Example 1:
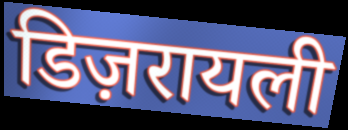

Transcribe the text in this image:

डिज़रायली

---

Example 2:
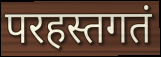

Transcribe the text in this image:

परहस्तगतं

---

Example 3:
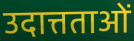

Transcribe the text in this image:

उदात्तताओं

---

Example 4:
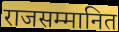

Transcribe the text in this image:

राजसम्मानित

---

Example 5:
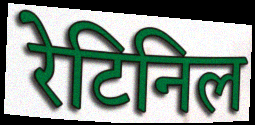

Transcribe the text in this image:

रेटिनिल